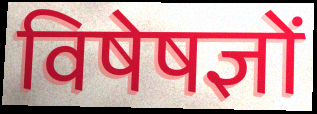
विषेषज्ञों